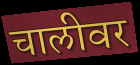
चालीवर